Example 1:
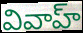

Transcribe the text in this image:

వివాహ్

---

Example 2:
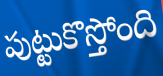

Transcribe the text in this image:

పుట్టుకొస్తోంది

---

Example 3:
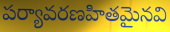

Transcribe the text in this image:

పర్యావరణహితమైనవి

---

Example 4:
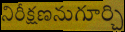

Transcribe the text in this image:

నిరీక్షణనుగూర్చి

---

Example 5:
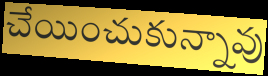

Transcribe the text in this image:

చేయించుకున్నావు